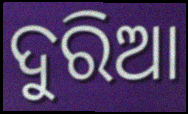
ଦୁରିଆ